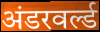
अंडरवर्ल्‍ड